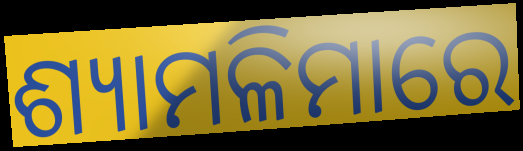
ଶ୍ୟାମଳିମାରେ